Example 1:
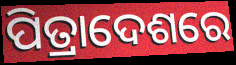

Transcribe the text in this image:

ପିତ୍ରାଦେଶରେ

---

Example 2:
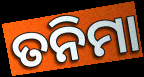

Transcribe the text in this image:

ତନିମା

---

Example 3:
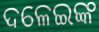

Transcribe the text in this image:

ଦଳେଇଙ୍କ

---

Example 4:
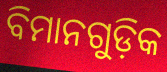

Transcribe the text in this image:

ବିମାନଗୁଡ଼ିକ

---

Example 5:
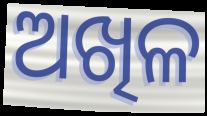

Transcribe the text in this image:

ଅଖିଳ